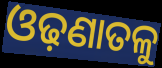
ଓଢ଼ଣାତଳୁ